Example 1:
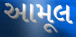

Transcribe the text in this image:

આમૂલ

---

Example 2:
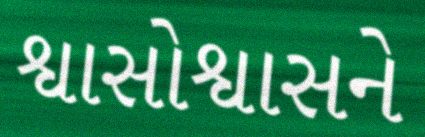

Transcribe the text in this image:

શ્વાસોશ્વાસને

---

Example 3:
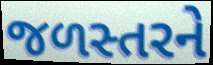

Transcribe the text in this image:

જળસ્તરને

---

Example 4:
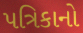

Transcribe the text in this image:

પત્રિકાનો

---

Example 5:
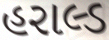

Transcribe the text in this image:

હરાલ્ડ